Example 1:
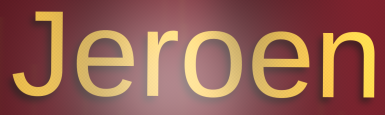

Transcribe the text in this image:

Jeroen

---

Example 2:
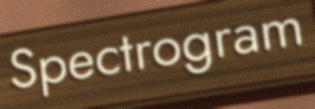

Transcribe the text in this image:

Spectrogram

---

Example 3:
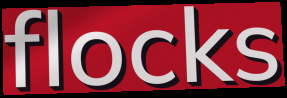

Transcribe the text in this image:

flocks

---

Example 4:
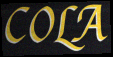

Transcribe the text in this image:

COLA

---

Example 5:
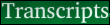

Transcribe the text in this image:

Transcripts